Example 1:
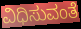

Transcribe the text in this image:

ವಿಧಿಸುವಂತೆ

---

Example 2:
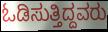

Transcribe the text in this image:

ಓಡಿಸುತ್ತಿದ್ದವರು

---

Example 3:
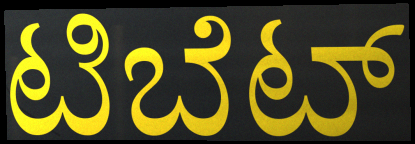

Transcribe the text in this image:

ಟಿಬೆಟ್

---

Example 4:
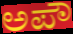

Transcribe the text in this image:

ಅಪೌ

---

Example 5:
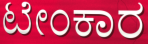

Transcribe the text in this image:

ಟೇಂಕಾರ